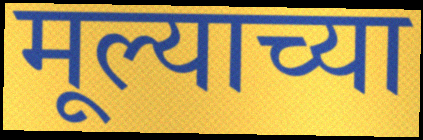
मूल्याच्या